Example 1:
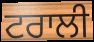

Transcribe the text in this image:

ਟਰਾਲੀ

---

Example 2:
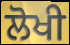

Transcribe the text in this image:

ਲੋਖੀ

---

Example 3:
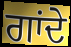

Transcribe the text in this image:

ਗਾਂਦੇ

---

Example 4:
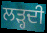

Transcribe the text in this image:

ਲੜ੍ਹਦੀ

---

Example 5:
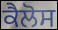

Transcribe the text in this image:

ਕੈਲੋਸ